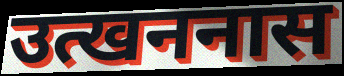
उत्खननास